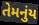
તેમનુંય